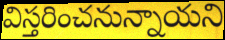
విస్తరించనున్నాయని